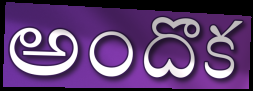
అందొక